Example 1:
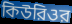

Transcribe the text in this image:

কিউরিওর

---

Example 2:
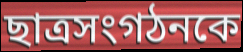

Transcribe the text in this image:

ছাত্রসংগঠনকে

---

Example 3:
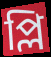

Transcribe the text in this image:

প্লি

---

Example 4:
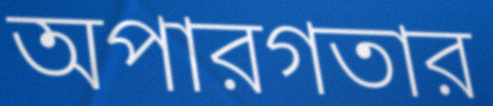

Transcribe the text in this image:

অপারগতার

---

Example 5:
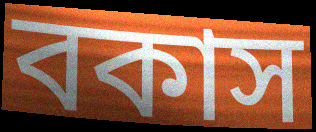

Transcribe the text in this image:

বকাস